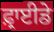
ਫ਼੍ਰਾਈਡੇ